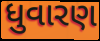
ધુવારણ